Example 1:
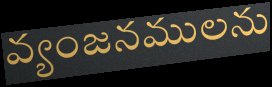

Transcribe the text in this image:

వ్యంజనములను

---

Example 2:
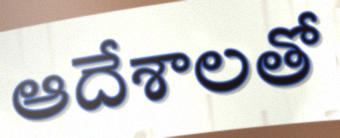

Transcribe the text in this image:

ఆదేశాలతో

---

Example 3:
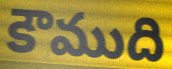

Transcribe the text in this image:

కౌముది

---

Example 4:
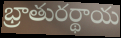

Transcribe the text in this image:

భ్రాతురర్థాయ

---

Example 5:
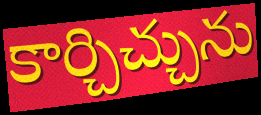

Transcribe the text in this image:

కార్చిచ్చును